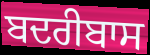
ਬਦਰੀਬਾਸ